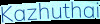
Kazhuthai